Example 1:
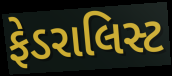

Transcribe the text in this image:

ફેડરાલિસ્ટ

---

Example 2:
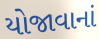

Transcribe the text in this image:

યોજાવાનાં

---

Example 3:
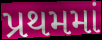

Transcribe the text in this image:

પ્રથમમાં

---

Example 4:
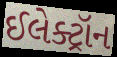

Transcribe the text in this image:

ઈલેક્ટ્રૉન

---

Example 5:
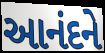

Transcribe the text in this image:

આનંદને